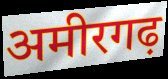
अमीरगढ़